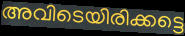
അവിടെയിരിക്കട്ടെ